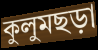
কুলুমছড়া